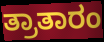
ತ್ರಾತಾರಂ